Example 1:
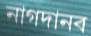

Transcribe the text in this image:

নাগদানব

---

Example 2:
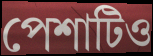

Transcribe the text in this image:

পেশাটিও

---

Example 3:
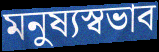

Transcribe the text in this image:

মনুষ্যস্বভাব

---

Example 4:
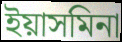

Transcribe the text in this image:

ইয়াসমিনা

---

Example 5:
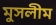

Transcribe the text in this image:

মুসলীম